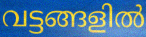
വട്ടങ്ങളിൽ